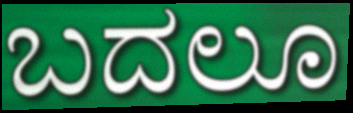
ಬದಲೂ